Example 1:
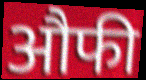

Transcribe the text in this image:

औफी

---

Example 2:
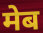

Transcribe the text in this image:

मेब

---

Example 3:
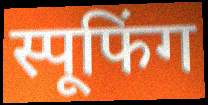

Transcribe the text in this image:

स्पूफिंग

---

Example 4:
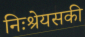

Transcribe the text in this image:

निःश्रेयसकी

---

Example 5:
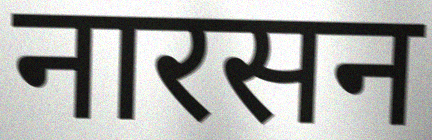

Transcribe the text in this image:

नारसन